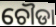
ଚୌଡା